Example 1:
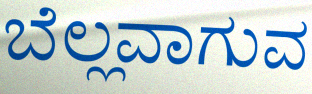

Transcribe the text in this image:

ಬೆಲ್ಲವಾಗುವ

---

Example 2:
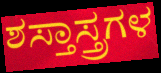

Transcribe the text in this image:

ಶಸ್ತಾಸ್ತ್ರಗಳ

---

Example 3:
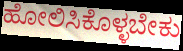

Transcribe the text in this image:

ಹೋಲಿಸಿಕೊಳ್ಳಬೇಕು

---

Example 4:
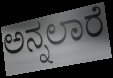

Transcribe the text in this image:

ಅನ್ನಲಾರೆ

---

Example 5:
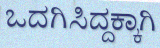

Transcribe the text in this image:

ಒದಗಿಸಿದ್ದಕ್ಕಾಗಿ